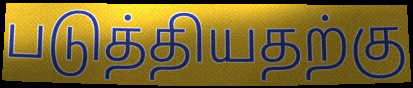
படுத்தியதற்கு